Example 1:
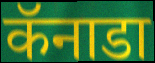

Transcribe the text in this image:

कॅनाडा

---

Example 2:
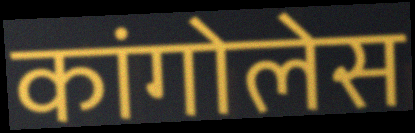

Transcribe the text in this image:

कांगोलेस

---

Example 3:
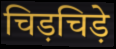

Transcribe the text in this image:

चिड़चिड़े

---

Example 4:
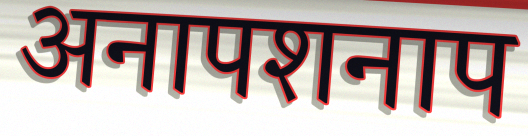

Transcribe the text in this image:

अनापशनाप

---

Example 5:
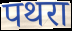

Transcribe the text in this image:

पथरा